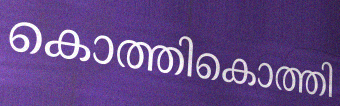
കൊത്തികൊത്തി